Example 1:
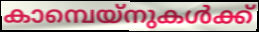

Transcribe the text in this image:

കാമ്പെയ്നുകൾക്ക്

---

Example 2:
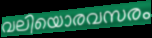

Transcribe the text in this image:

വലിയൊരവസരം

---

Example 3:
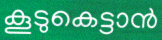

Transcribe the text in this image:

കൂടുകെട്ടാൻ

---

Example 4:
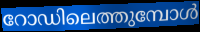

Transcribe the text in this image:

റോഡിലെത്തുമ്പോൾ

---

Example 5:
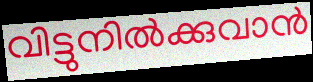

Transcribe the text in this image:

വിട്ടുനിൽക്കുവാൻ